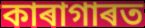
কাৰাগাৰত